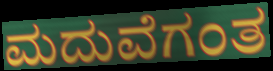
ಮದುವೆಗಂತ